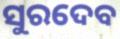
ସୁରଦେବ